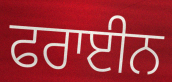
ਫਰਾਈਨ